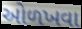
ઓળખવા